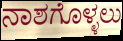
ನಾಶಗೊಳ್ಳಲು